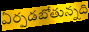
ఏర్పడబోతున్నది